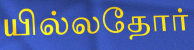
யில்லதோர்